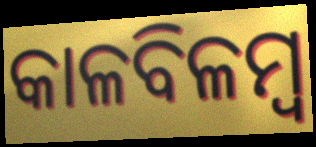
କାଳବିଳମ୍ବ